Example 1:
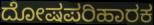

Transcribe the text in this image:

ದೋಷಪರಿಹಾರಕ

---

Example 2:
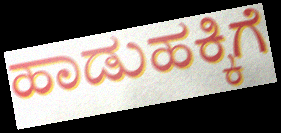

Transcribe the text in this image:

ಹಾಡುಹಕ್ಕಿಗೆ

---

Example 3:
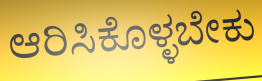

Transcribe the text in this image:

ಆರಿಸಿಕೊಳ್ಳಬೇಕು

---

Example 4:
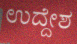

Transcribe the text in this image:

ಉದ್ದೇಶ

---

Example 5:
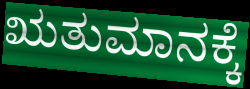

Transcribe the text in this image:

ಋತುಮಾನಕ್ಕೆ